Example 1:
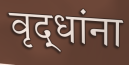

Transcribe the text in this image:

वृद्धांना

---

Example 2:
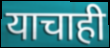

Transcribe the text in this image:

याचाही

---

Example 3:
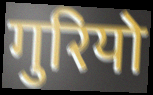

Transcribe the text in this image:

गुरियो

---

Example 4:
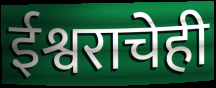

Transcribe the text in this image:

ईश्वराचेही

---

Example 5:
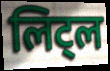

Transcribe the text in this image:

लिट्ल